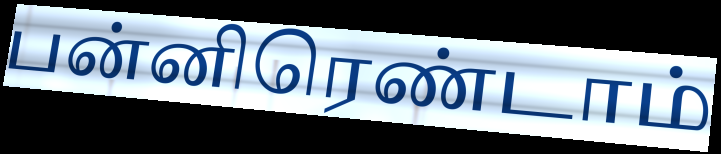
பன்னிரெண்டாம்